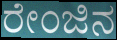
ರೇಂಜಿನ